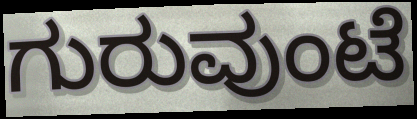
ಗುರುವುಂಟೆ